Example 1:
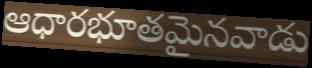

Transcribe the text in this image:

ఆధారభూతమైనవాడు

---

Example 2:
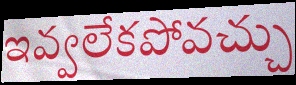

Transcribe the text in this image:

ఇవ్వలేకపోవచ్చు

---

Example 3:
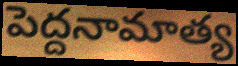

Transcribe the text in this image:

పెద్దనామాత్య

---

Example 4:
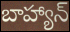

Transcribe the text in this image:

బాహ్యాన్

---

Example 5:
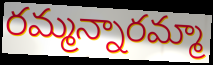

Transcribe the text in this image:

రమ్మన్నారమ్మా